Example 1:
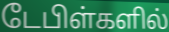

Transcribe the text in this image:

டேபிள்களில்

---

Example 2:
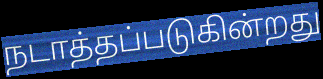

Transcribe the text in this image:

நடாத்தப்படுகின்றது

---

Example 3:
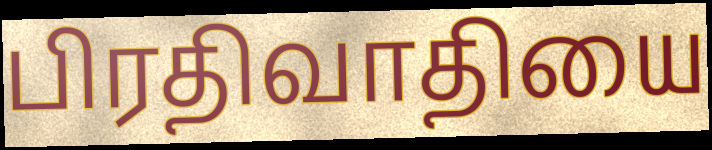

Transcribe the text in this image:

பிரதிவாதியை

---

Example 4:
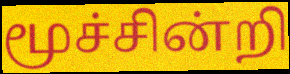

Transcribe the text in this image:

மூச்சின்றி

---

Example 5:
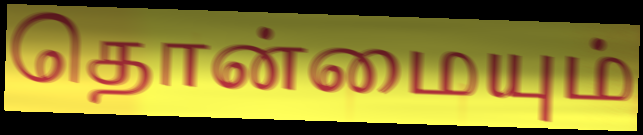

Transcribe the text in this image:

தொன்மையும்